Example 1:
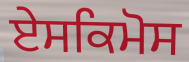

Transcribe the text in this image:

ਏਸਕਿਮੋਸ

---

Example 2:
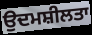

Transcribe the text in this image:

ਉਦਮਸ਼ੀਲਤਾ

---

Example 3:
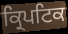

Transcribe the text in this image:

ਕ੍ਰਿਪਟਿਕ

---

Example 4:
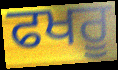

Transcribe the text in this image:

ਫਖਰੂ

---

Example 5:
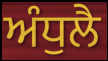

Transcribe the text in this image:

ਅੰਧੁਲੈ